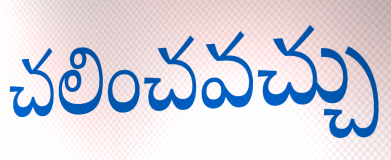
చలించవచ్చు